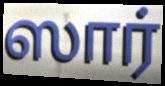
ஸார்